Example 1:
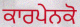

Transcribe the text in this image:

ਕਾਰਪੇਨਕੋ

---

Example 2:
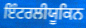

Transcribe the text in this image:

ਇੰਟਰਲੀਯੂਕਿਨ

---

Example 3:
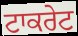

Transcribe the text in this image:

ਟਾਕਰੇਟ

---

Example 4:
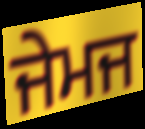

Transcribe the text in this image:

ਜੇਮਜ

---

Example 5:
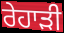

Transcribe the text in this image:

ਰੇਹਾੜੀ